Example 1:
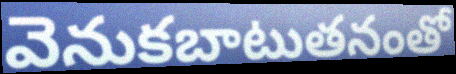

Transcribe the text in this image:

వెనుకబాటుతనంతో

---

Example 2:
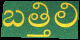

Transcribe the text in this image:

బత్తిలి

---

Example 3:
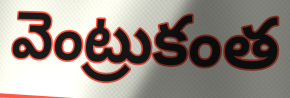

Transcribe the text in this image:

వెంట్రుకంత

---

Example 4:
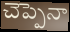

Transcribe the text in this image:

చెప్పెనా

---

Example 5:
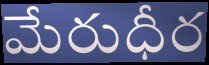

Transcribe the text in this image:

మేరుధీర